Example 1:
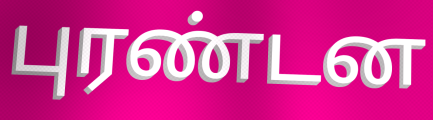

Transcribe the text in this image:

புரண்டன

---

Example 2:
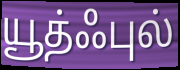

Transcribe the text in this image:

யூத்ஃபுல்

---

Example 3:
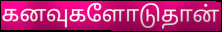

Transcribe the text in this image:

கனவுகளோடுதான்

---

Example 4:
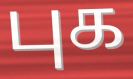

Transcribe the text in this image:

புக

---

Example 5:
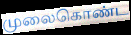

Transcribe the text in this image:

முலைகொண்ட